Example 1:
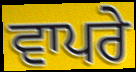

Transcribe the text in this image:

ਵਾਪਰੇ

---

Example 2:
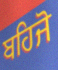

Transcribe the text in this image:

ਬਹਿਜੋ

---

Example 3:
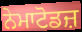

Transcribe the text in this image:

ਨੇਮਾਟੋਡਜ਼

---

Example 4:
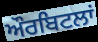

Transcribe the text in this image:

ਔਰਬਿਟਲਾਂ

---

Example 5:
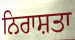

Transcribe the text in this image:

ਨਿਰਾਸ਼ਤਾ